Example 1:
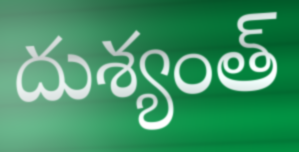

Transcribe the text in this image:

దుశ్యంత్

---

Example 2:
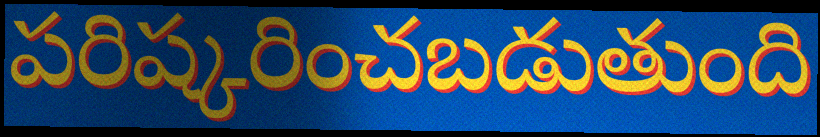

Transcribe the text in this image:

పరిష్కరించబడుతుంది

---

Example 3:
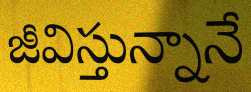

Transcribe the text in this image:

జీవిస్తున్నానే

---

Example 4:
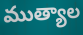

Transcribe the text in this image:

ముత్యాల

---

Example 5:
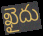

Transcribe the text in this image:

ఖైదు